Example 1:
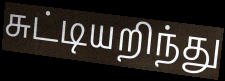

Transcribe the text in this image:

சுட்டியறிந்து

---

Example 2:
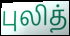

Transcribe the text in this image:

புலித்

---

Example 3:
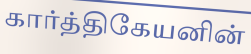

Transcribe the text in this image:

கார்த்திகேயனின்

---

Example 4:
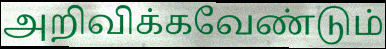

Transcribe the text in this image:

அறிவிக்கவேண்டும்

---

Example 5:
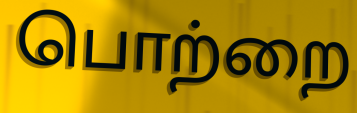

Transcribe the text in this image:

பொற்றை